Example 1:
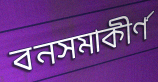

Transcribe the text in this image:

বনসমাকীর্ণ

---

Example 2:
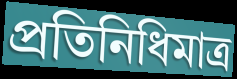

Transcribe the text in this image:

প্রতিনিধিমাত্র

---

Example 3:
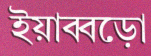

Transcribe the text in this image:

ইয়াব্বড়ো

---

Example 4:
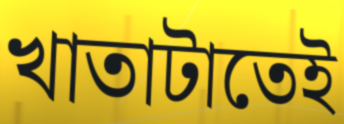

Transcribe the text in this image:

খাতাটাতেই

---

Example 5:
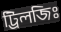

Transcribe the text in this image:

ট্রিলজিঃ